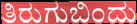
ತಿರುಗುಬಿಂದು